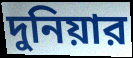
দুনিয়ার